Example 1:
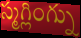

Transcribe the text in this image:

స్మగ్లింగ్ను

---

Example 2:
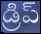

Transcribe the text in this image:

డ్రిప్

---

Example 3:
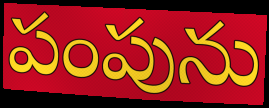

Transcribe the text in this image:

పంపును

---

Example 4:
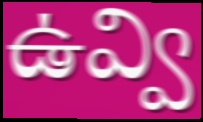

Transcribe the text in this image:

ఉవ్వి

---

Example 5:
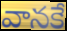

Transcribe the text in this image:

వానకే